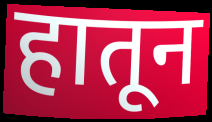
हातून